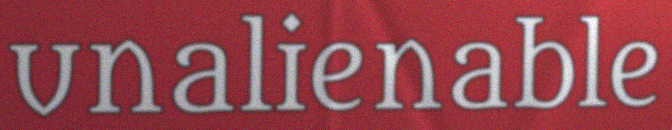
unalienable